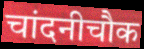
चांदनीचौक